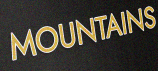
MOUNTAINS